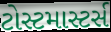
ટોસ્ટમાસ્ટર્સ